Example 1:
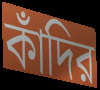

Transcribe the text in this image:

কাঁদির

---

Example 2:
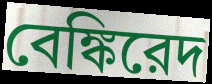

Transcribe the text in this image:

বেঙ্কিরেদ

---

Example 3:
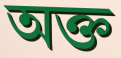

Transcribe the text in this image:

অক্ত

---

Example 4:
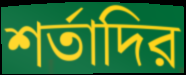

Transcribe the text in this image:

শর্তাদির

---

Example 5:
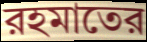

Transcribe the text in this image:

রহমাতের